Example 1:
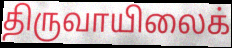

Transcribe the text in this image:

திருவாயிலைக்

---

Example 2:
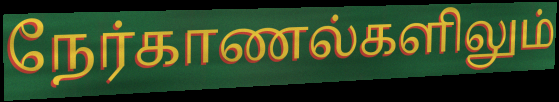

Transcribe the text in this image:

நேர்காணல்களிலும்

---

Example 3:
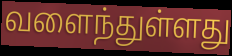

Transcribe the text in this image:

வளைந்துள்ளது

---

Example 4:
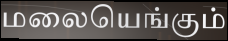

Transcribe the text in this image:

மலையெங்கும்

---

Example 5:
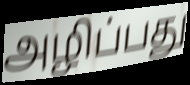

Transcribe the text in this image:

அழிப்பது